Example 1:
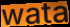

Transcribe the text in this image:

wata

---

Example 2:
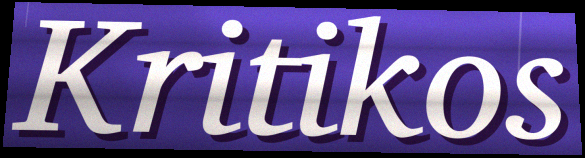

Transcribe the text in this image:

Kritikos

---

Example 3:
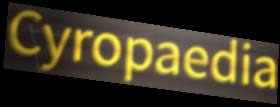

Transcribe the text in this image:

Cyropaedia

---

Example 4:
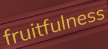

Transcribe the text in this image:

fruitfulness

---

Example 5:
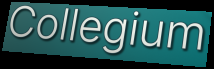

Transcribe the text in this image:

Collegium